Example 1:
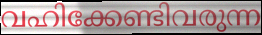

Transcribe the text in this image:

വഹിക്കേണ്ടിവരുന്ന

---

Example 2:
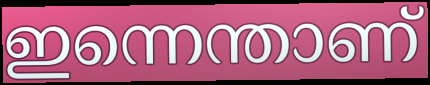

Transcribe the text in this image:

ഇന്നെന്താണ്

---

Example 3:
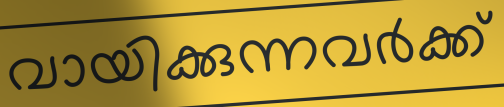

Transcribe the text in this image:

വായിക്കുന്നവർക്ക്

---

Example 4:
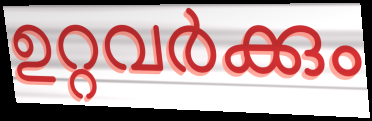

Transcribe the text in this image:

ഉറ്റവർക്കും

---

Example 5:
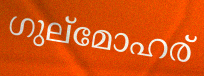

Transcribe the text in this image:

ഗുല്മോഹര്